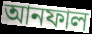
আনফাল